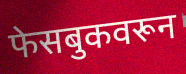
फेसबुकवरून